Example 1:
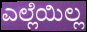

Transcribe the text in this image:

ಎಲ್ಲೆಯಿಲ್ಲ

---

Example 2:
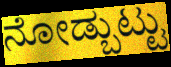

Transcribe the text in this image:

ನೋಡ್ಬುಟ್ಟು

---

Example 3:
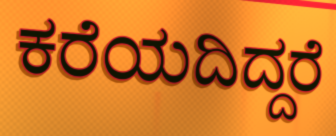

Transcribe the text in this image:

ಕರೆಯದಿದ್ದರೆ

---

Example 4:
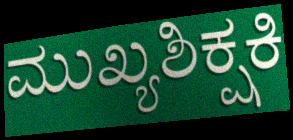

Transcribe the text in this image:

ಮುಖ್ಯಶಿಕ್ಷಕಿ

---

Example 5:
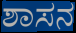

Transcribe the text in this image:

ಶಾಸನ